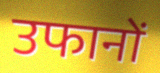
उफानों